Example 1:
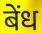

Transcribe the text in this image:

बेंध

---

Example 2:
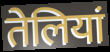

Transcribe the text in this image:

तेलियां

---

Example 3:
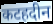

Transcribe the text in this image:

कटहदीन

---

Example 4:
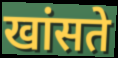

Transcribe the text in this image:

खांसते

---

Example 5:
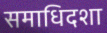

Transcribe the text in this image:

समाधिदशा